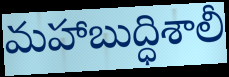
మహాబుద్ధిశాలీ